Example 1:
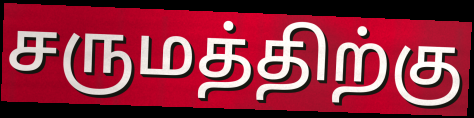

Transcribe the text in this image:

சருமத்திற்கு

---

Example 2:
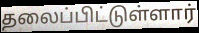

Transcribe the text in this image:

தலைப்பிட்டுள்ளார்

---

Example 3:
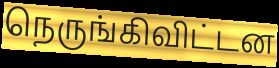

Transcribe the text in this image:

நெருங்கிவிட்டன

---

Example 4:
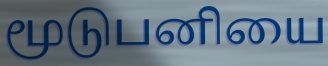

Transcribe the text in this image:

மூடுபனியை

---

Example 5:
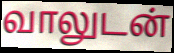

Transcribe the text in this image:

வாலுடன்